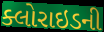
ક્લોરાઇડની